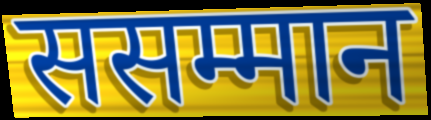
ससम्मान